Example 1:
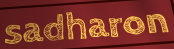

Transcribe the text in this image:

sadharon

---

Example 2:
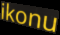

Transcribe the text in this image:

ikonu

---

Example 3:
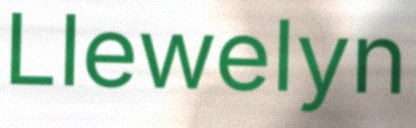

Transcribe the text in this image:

Llewelyn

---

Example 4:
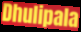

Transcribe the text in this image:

Dhulipala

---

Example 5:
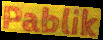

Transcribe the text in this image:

Pablik